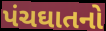
પંચઘાતનો